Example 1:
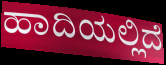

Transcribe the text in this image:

ಹಾದಿಯಲ್ಲಿದೆ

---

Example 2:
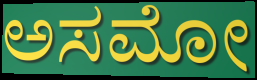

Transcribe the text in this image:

ಅಸಮೋ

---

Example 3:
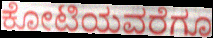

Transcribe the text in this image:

ಕೋಟಿಯವರೆಗೂ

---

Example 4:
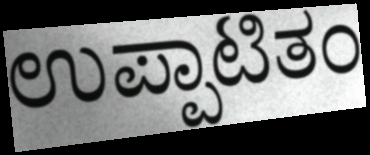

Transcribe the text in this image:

ಉಪ್ಪಾಟಿತಂ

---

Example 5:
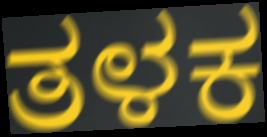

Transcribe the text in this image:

ತಳಕ